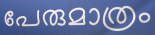
പേരുമാത്രം